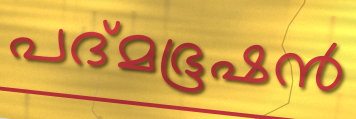
പദ്മഭൂഷൻ